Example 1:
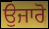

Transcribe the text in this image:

ਉਜਾਰੋ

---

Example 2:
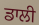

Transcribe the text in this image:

ਡਾਲੀ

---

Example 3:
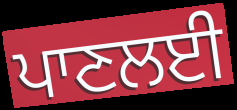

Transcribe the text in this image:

ਪਾਣਲਈ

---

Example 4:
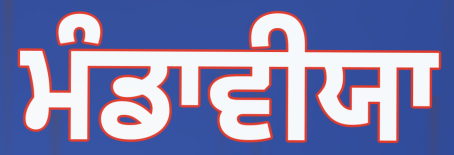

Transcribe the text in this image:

ਮੰਡਾਵੀਯਾ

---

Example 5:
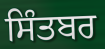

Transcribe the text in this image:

ਸਿੰਤਬਰ